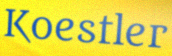
Koestler